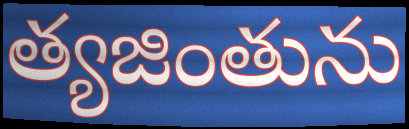
త్యజింతును